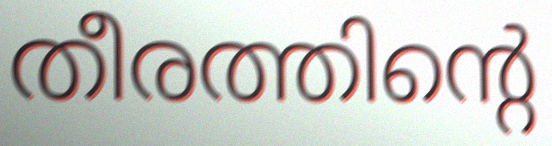
തീരത്തിന്റെ